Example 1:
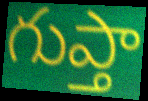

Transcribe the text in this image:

గుప్తా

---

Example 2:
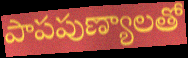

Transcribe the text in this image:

పాపపుణ్యాలతో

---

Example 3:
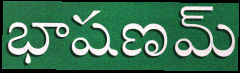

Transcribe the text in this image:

భాషణమ్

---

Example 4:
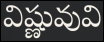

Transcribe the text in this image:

విష్ణువువి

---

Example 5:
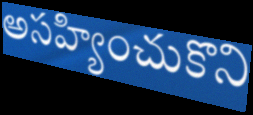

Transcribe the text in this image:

అసహ్యించుకొని